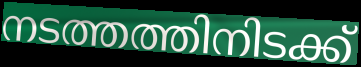
നടത്തത്തിനിടക്ക്